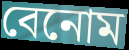
বেনোম